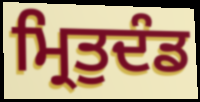
ਮ੍ਰਿਤੁਦੰਡ